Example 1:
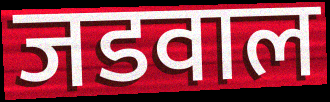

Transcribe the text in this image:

जडवाल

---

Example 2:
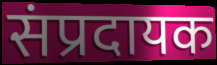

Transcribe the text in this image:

संप्रदायक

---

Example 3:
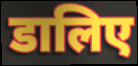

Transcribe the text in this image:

डालिए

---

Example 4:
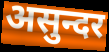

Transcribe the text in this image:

असुन्दर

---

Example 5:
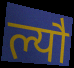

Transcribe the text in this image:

ल्यौ